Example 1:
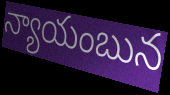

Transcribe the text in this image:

న్యాయంబున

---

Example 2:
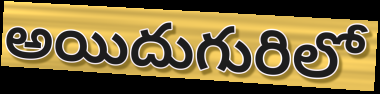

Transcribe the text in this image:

అయిదుగురిలో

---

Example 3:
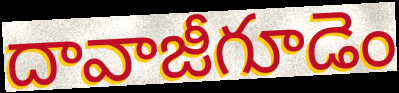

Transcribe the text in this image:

దావాజీగూడెం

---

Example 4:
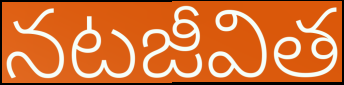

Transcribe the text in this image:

నటజీవిత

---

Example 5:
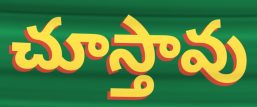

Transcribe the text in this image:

చూస్తావు